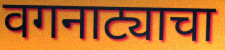
वगनाट्याचा